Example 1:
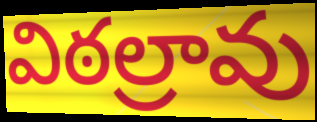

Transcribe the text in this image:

విఠల్రావు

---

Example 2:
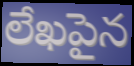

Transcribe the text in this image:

లేఖపైన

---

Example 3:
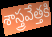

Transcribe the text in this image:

శాస్త్రవేత్తకి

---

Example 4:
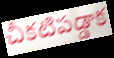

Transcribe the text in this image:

చీకటిపడ్డాక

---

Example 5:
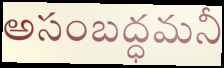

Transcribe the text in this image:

అసంబద్ధమనీ